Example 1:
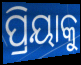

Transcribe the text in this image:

ପ୍ରିୟାକୁ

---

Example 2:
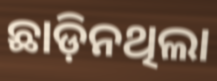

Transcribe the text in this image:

ଛାଡ଼ିନଥିଲା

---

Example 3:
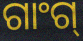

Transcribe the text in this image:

ଗାଂଗ୍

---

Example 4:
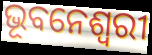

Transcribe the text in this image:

ଭୂବନେଶ୍ୱରୀ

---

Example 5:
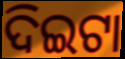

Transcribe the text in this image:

ଦିଇଟା